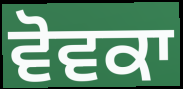
ਵੋਵਕਾ